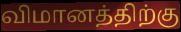
விமானத்திற்கு